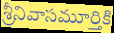
శ్రీనివాసమూర్తికి